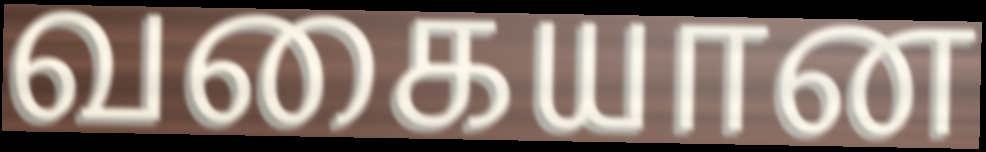
வகையான